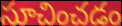
సూచించడం